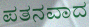
ಪತನವಾದ